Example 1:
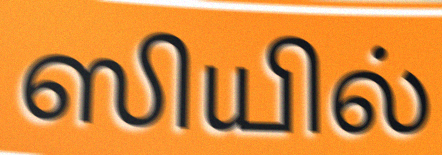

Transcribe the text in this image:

ஸியில்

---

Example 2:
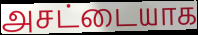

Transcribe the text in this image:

அசட்டையாக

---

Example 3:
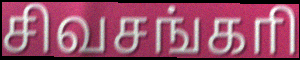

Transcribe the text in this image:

சிவசங்கரி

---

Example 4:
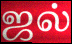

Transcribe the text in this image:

ஜல்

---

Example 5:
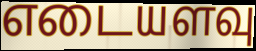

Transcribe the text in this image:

எடையளவு